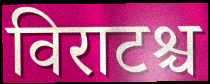
विराटश्च